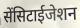
सेंसिटाईजेशन